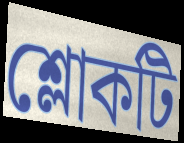
শ্লোকটি